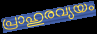
പ്രാഹുരവ്യയം